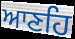
ਆਣਹਿ